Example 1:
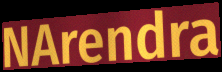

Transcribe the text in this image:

NArendra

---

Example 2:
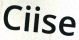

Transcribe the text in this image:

Ciise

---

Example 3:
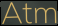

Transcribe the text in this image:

Atm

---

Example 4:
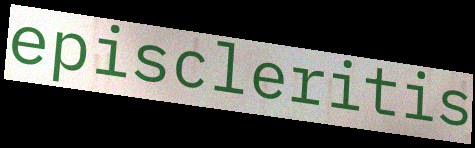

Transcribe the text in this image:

episcleritis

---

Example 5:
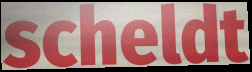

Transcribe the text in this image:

scheldt